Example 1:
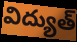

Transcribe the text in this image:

విద్యుత్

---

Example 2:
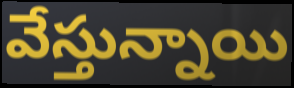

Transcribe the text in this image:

వేస్తున్నాయి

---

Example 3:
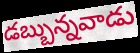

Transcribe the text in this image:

డబ్బున్నవాడు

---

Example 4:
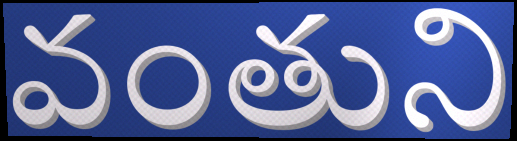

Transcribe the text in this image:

వంతుని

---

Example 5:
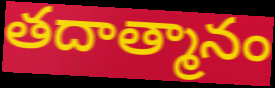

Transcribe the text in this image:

తదాత్మానం